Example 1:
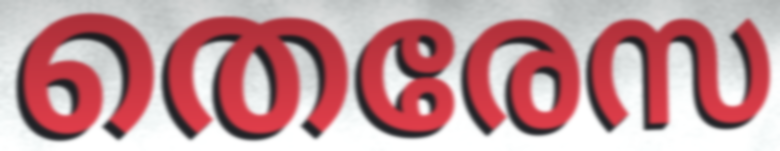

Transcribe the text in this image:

തെരേസ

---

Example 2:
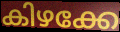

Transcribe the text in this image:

കിഴക്കേ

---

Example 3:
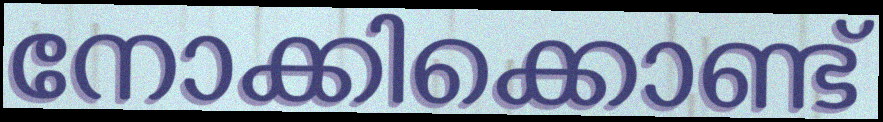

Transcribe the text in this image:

നോക്കിക്കൊണ്ട്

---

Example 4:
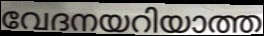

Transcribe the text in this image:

വേദനയറിയാത്ത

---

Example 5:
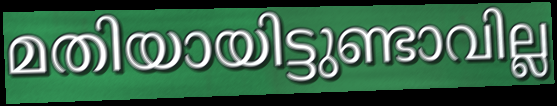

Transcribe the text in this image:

മതിയായിട്ടുണ്ടാവില്ല